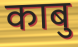
काबु